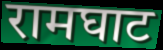
रामघाट